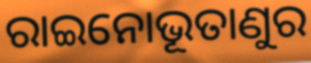
ରାଇନୋଭୂତାଣୁର